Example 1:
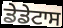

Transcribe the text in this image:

ਡੇਡੇਟਾਸ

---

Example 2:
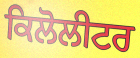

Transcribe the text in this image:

ਕਿਲੋਲੀਟਰ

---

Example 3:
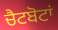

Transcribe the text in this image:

ਚੈਟਬੋਟਾਂ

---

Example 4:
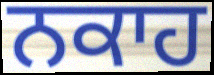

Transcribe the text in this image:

ਨਕਾਹ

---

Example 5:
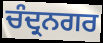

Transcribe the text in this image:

ਚੰਦ੍ਰਨਗਰ